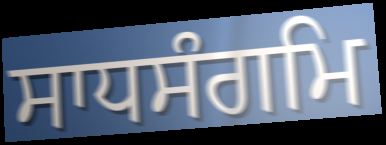
ਸਾਧਸੰਗਮਿ